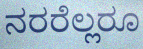
ನರರೆಲ್ಲರೂ